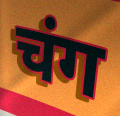
चंग